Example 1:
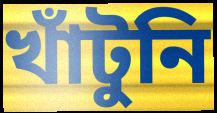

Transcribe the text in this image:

খাঁটুনি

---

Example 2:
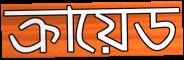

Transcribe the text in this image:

ক্রায়েড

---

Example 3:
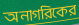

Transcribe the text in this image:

অনাগরিকের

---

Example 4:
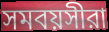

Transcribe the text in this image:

সমবয়সীরা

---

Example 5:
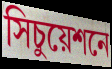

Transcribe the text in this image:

সিচুয়েশনে